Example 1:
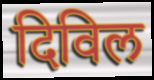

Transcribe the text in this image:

दिविल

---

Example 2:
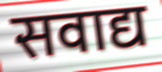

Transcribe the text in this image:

सवाद्य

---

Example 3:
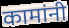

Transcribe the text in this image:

कामांनी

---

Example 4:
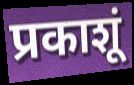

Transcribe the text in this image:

प्रकाशूं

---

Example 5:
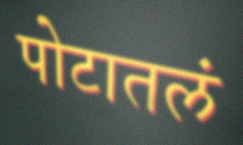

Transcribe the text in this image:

पोटातलं